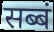
सब्बं